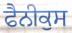
ਫੈਨੀਕੁਸ